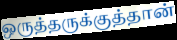
ஒருத்தருக்குத்தான்